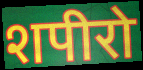
शपीरो